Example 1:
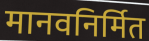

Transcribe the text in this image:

मानवनिर्मित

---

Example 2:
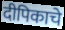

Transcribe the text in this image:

दीपिकाचे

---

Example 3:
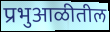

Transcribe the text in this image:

प्रभुआळीतील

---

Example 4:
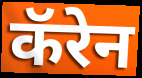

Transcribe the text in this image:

कॅरेन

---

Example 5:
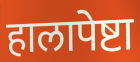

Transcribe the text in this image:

हालापेष्टा